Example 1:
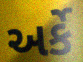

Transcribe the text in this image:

અર્કે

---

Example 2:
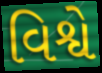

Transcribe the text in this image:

વિશ્વે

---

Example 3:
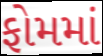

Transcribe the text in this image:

ફોમમાં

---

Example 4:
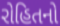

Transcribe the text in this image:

રોહિતનો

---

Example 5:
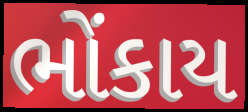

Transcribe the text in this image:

ભોંકાય